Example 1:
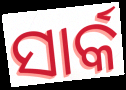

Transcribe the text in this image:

ସାର୍କ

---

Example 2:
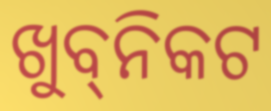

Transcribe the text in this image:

ଖୁବ୍‌ନିକଟ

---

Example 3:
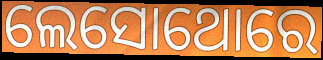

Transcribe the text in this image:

ଲେସୋଥୋରେ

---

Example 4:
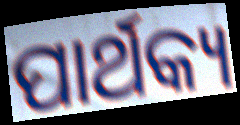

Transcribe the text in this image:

ପାର୍ଥକ୍ୟ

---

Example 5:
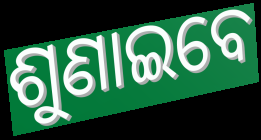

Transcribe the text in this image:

ଶୁଣାଇବେ